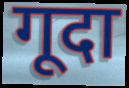
गूदा